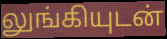
லுங்கியுடன்